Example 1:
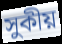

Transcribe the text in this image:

সুকীয়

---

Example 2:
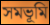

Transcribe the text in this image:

সমভূমি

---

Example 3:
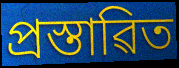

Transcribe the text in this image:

প্ৰস্তাৱিত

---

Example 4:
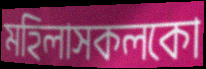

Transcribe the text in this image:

মহিলাসকলকো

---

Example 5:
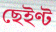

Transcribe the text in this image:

ছেইণ্ট